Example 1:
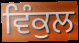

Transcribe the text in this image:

ਵਿੰਕੁਲ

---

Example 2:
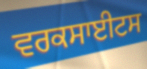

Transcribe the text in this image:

ਵਰਕਸਾਈਟਸ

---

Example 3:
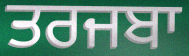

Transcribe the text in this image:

ਤਰਜਬਾ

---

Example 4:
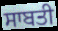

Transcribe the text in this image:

ਸਾਬਤੀ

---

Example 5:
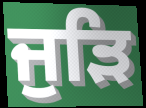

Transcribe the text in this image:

ਜੁੜਿ